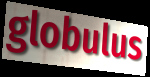
globulus